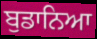
ਬੁਡਾਨਿਆ